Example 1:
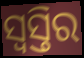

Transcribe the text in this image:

ସ୍ୱସ୍ତିର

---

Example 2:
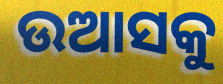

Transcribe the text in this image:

ଉଆସକୁ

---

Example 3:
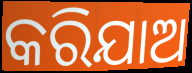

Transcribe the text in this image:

କରିଯାଅ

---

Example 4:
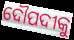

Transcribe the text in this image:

ଦୌପଦୀକୁ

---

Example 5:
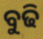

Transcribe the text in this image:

ବୁଢି